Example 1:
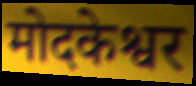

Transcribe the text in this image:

मोदकेश्वर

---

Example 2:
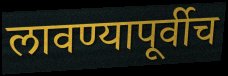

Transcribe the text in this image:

लावण्यापूर्वीच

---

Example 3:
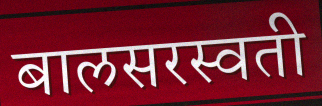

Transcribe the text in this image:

बालसरस्वती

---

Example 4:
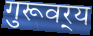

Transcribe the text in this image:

गुरूवर्य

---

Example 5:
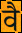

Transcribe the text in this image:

वै